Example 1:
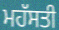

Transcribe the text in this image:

ਮਹੱਸਤੀ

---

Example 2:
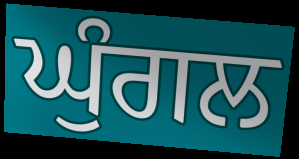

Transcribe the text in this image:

ਘੁੰਗਲ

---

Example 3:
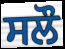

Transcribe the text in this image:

ਸਲੌ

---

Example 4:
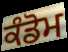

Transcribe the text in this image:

ਕੰਡੋਮ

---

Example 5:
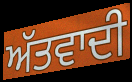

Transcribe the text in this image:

ਅੱਤਵਾਦੀ